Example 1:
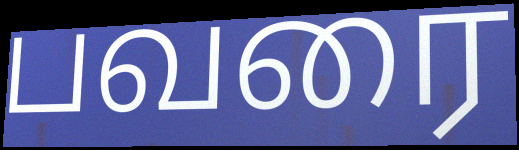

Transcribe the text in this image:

பவரை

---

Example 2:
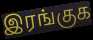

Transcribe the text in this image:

இரங்குக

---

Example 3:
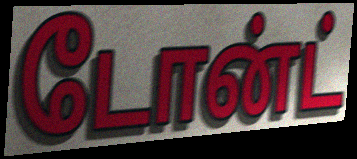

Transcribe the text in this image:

டோன்ட்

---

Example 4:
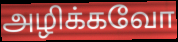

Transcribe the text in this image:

அழிக்கவோ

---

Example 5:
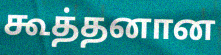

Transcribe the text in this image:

கூத்தனான